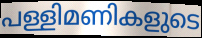
പള്ളിമണികളുടെ